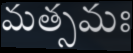
మత్సమః